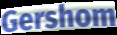
Gershom